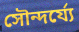
সৌন্দর্য্যে